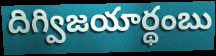
దిగ్విజయార్థంబు